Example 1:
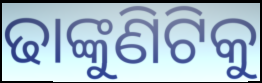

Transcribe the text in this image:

ଢାଙ୍କୁଣିଟିକୁ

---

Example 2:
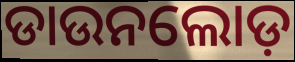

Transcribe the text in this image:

ଡାଉନଲୋଡ଼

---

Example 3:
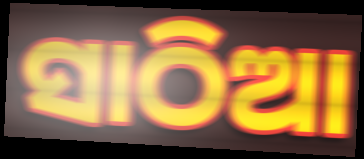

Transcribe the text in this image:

ସାଠିଆ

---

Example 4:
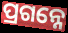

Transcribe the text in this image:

ପ୍ରଗନ୍ନେ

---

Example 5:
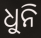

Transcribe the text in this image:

ଧୁନି